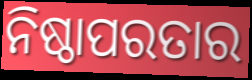
ନିଷ୍ଠାପରତାର